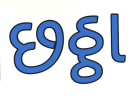
છઠ્ઠા